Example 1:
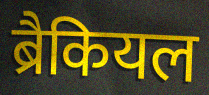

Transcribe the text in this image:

ब्रैकियल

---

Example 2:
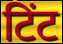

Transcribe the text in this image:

टिंट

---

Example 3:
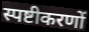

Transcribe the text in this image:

स्पष्टीकरणों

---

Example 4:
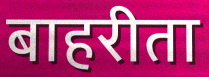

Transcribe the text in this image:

बाहरीता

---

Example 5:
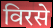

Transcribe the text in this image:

विरसे